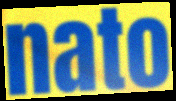
nato